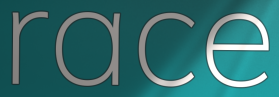
race